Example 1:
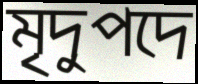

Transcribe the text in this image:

মৃদুপদে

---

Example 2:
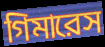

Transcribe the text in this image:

গিমারেস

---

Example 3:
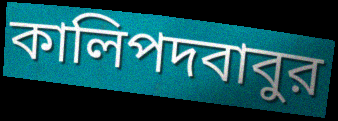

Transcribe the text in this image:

কালিপদবাবুর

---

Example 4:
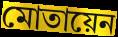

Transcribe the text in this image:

মোতায়েন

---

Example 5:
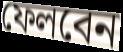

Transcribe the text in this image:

ফেলবেন